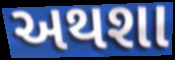
અથશા